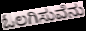
ಓಲಗಿಸುವೆನು